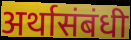
अर्थासंबंधी